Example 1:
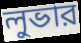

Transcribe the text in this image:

লুভার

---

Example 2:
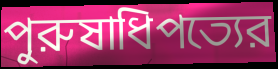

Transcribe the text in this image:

পুরুষাধিপত্যের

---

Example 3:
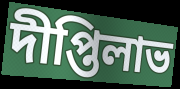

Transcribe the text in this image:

দীপ্তিলাভ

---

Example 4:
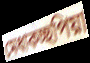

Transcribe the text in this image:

মেধাকচ্ছপিয়া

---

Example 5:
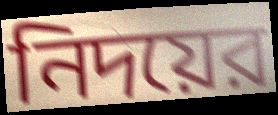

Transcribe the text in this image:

নিদয়ের